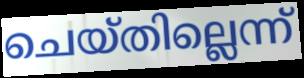
ചെയ്തില്ലെന്ന്